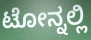
ಟೋನ್ನಲ್ಲಿ